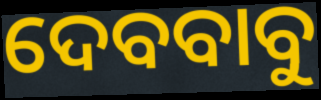
ଦେବବାବୁ